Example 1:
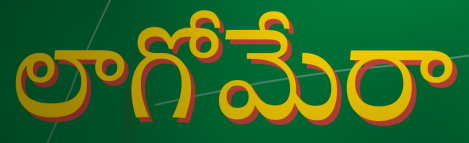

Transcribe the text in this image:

లాగోమేరా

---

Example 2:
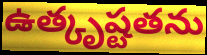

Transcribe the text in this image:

ఉత్కృష్టతను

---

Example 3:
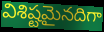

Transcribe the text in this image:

విశిష్టమైనదిగా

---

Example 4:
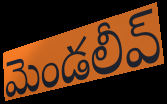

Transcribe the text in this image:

మెండలీవ్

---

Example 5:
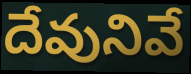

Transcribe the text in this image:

దేవునివే